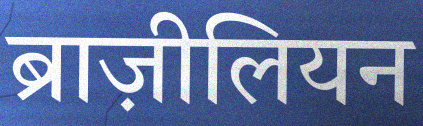
ब्राज़ीलियन